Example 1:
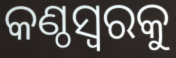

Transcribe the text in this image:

କଣ୍ଠସ୍ୱରକୁ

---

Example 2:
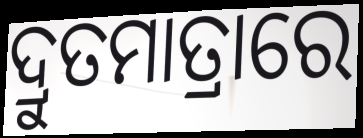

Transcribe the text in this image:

ଦ୍ରୁତମାତ୍ରାରେ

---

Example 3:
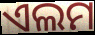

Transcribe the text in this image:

ଏଲମ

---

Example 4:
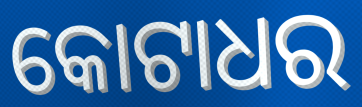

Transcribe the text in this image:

କୋଟାଧର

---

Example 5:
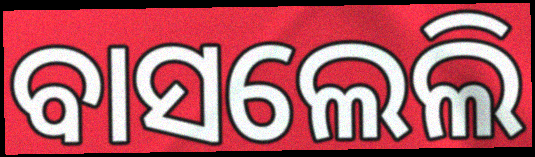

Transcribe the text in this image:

ବାସଲେଲି